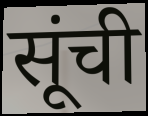
सूंची